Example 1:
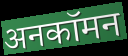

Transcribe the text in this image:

अनकॉमन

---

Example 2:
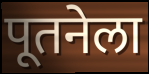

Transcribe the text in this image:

पूतनेला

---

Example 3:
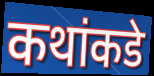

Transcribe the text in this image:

कथांकडे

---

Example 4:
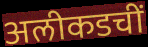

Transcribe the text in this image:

अलीकडचीं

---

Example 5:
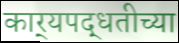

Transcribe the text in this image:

कार्यपद्धतीच्या